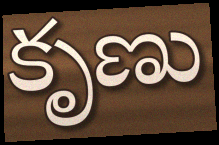
కృణు